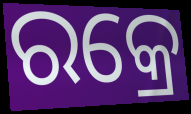
ରକ୍ରେ